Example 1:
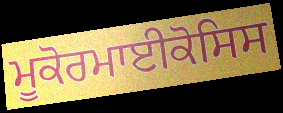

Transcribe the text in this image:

ਮੂਕੋਰਮਾਈਕੋਸਿਸ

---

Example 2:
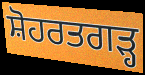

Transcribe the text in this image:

ਸ਼ੋਹਰਤਗੜ੍ਹ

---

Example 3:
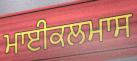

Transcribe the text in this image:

ਮਾਈਕਲਮਾਸ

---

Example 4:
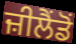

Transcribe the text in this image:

ਜ਼ੀਲੈਂਡੋਂ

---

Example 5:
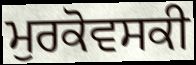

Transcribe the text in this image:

ਮੁਰਕੋਵਸਕੀ